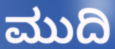
ಮುದಿ